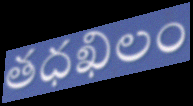
తధఖిలం